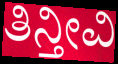
ತಿನ್ತೀವಿ